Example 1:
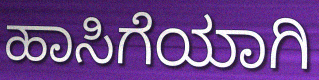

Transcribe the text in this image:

ಹಾಸಿಗೆಯಾಗಿ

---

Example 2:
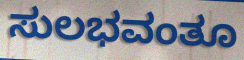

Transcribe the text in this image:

ಸುಲಭವಂತೂ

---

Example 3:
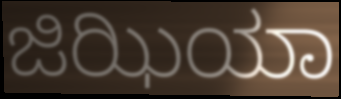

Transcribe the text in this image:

ಜಿಝಿಯಾ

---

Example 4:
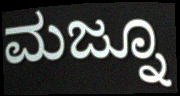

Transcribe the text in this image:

ಮಜ್ನೂ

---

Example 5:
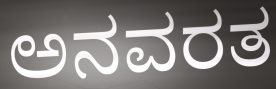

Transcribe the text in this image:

ಅನವರತ